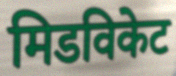
मिडविकेट